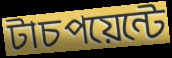
টাচপয়েন্টে